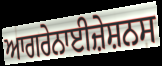
ਆਗਰੇਨਾਈਜ਼ੇਸ਼ਨਸ